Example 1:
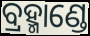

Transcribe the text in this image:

ବ୍ରହ୍ମାଣ୍ଡେ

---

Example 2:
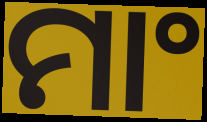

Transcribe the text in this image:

ମାଂ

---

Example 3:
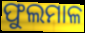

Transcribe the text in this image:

ଫୁଲମାଳ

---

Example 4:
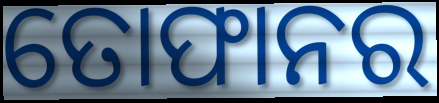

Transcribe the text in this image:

ତୋଫାନର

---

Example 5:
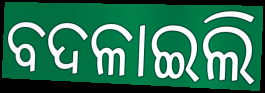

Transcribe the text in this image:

ବଦଳାଇଲି